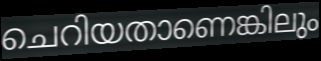
ചെറിയതാണെങ്കിലും